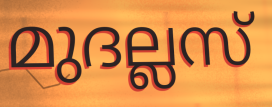
മുദല്ലസ്